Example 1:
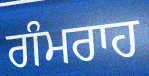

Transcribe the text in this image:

ਗੰਮਰਾਹ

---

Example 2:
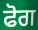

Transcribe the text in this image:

ਫੋਗ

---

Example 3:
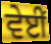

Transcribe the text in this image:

ਵੇਈਂ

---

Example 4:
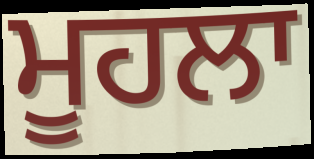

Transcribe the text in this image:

ਮੂਹਲਾ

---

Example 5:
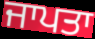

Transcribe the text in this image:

ਜਾਪਤਾ